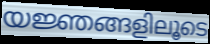
യജ്ഞങ്ങളിലൂടെ